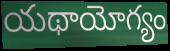
యథాయోగ్యం